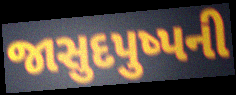
જાસુદપુષ્પની